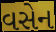
વસેન